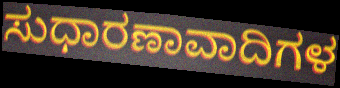
ಸುಧಾರಣಾವಾದಿಗಳ